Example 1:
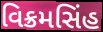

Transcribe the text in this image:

વિક્રમસિંહ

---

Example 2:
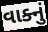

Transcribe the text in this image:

વાક્નું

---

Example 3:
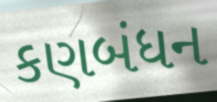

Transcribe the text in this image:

કણબંધન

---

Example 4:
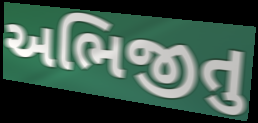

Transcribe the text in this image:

અભિજીતુ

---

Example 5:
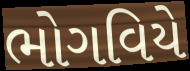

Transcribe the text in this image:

ભોગવિયે